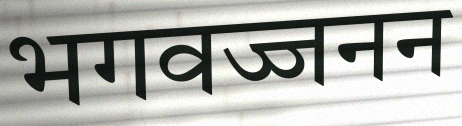
भगवज्जनन